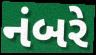
નંબરે